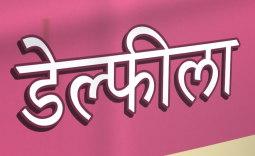
डेल्फीला